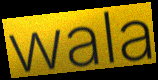
wala